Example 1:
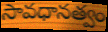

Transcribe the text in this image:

సావధానత్వం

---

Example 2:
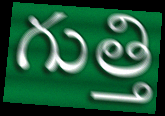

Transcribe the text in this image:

గుత్తి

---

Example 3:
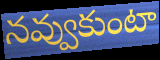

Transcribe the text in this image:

నవ్వుకుంటా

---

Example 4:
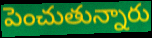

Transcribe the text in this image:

పెంచుతున్నారు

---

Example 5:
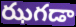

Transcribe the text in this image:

ఝగడా